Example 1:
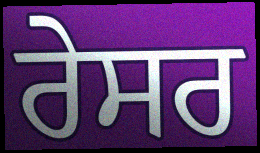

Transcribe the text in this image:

ਰੇਸਰ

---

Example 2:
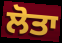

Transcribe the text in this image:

ਲੋਤਾ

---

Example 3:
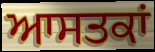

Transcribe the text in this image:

ਆਸਤਕਾਂ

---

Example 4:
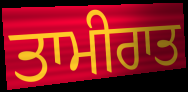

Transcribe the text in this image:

ਤਾਮੀਰਾਤ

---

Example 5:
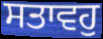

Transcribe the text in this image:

ਸਤਾਵਹੁ